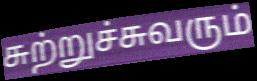
சுற்றுச்சுவரும்